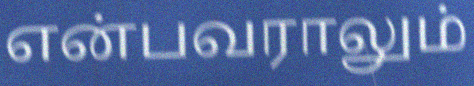
என்பவராலும்